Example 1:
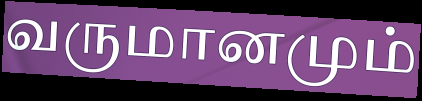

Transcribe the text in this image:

வருமானமும்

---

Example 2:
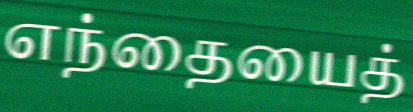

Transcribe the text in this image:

எந்தையைத்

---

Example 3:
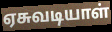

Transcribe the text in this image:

ஏசுவடியாள்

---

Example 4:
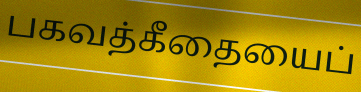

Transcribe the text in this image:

பகவத்கீதையைப்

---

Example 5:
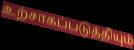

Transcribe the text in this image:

உற்சாகப்படுத்தியும்